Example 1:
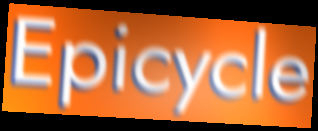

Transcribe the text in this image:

Epicycle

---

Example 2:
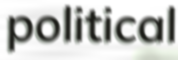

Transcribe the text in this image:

political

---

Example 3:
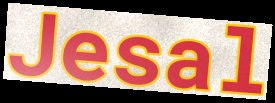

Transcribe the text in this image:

Jesal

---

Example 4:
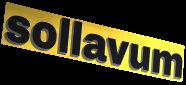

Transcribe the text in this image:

sollavum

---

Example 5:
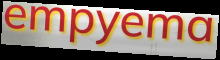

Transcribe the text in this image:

empyema